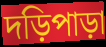
দড়িপাড়া